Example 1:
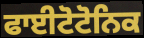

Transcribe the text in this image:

ਫਾਈਟੋਟੋਨਿਕ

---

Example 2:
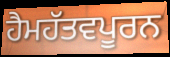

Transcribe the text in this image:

ਹੈਮਹੱਤਵਪੂਰਨ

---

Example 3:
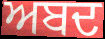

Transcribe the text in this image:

ਅਬਦ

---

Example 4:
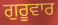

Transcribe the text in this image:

ਗੁਰੂਵਾਰ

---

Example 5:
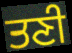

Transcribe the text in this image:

ਤਣੀ